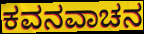
ಕವನವಾಚನ